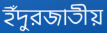
ইঁদুরজাতীয়